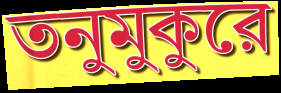
তনুমুকুরে